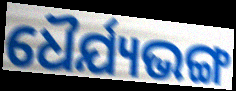
ଧୈର୍ଯ୍ୟଭଙ୍ଗ